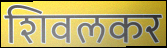
शिवलकर